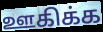
ஊகிக்க